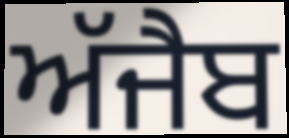
ਅੱਜੈਬ